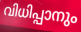
വിധിപ്പാനും